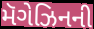
મૅગેઝિનની